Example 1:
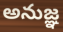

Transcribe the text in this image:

అనుజ్ఞ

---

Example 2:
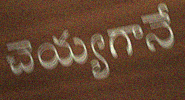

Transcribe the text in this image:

చెయ్యగానే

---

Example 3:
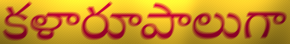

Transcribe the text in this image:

కళారూపాలుగా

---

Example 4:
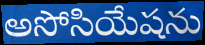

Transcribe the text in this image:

అసోసియేషను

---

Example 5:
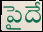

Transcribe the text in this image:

పైదే